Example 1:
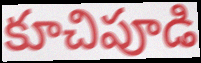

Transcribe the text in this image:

కూచిపూడి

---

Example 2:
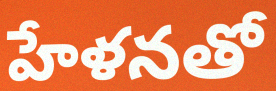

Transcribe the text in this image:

హేళనతో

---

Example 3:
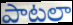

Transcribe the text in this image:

పాటలా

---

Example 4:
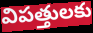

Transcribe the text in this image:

విపత్తులకు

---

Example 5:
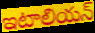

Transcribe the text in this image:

ఇటాలియన్